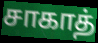
சாகாத்